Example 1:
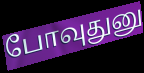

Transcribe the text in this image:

போவுதுனு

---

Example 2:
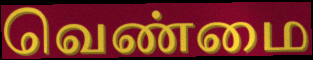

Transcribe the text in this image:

வெண்மை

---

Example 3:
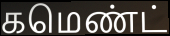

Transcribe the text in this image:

கமெண்ட்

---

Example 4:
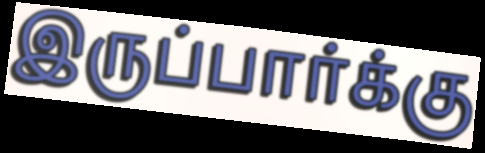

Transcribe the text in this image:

இருப்பார்க்கு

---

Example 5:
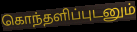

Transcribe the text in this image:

கொந்தளிப்புடனும்